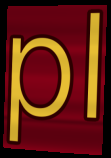
pl